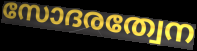
സോദരത്വേന